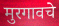
मुरगावचे